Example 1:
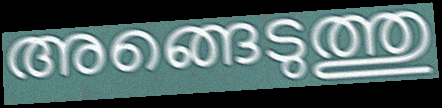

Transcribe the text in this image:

അങ്ങെടുത്തു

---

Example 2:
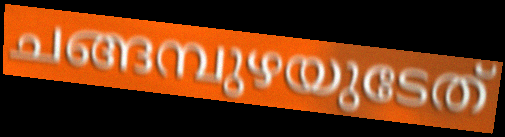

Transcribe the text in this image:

ചങ്ങമ്പുഴയുടേത്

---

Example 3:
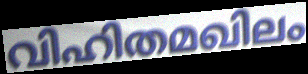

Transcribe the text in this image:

വിഹിതമഖിലം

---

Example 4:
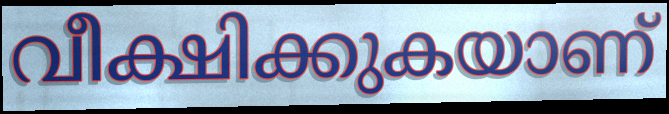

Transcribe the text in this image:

വീക്ഷിക്കുകയാണ്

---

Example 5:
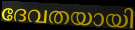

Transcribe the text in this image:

ദേവതയായി